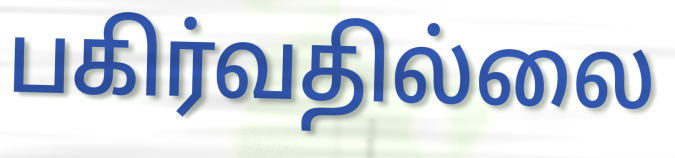
பகிர்வதில்லை